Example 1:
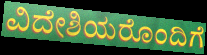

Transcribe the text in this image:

ವಿದೇಶಿಯರೊಂದಿಗೆ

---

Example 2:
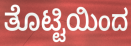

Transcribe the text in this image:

ತೊಟ್ಟಿಯಿಂದ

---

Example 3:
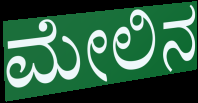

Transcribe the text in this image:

ಮೇಲಿನ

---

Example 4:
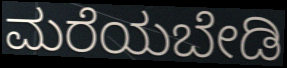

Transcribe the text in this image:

ಮರೆಯಬೇಡಿ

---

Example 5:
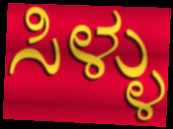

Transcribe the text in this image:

ಸಿಳ್ಳು